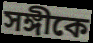
সঙ্গীকে